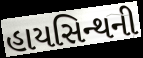
હાયસિન્થની